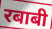
रबाबी